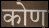
कोण